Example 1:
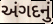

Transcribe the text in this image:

અંગદનું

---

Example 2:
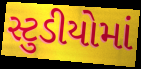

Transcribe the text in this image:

સ્ટુડીયોમાં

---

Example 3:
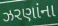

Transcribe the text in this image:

ઝરણાંના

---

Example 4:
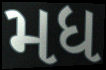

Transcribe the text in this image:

મધ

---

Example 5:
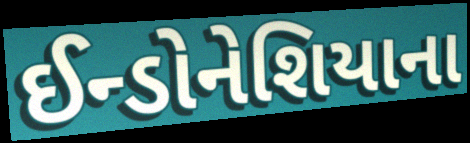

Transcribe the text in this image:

ઈન્ડોનેશિયાના